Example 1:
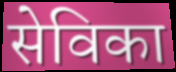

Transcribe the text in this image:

सेविका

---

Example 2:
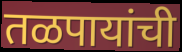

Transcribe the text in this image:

तळपायांची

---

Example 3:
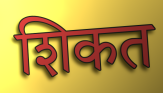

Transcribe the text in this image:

शिकत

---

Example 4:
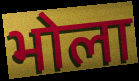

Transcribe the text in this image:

भोला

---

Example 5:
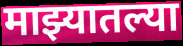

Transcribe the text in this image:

माझ्यातल्या